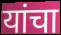
यांचा